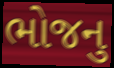
ભોજનુ